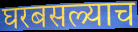
घरबसल्याच